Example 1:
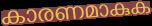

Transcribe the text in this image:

കാരണമാകുക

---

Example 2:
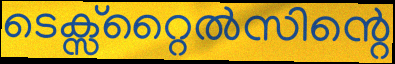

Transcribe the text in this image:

ടെക്സ്റ്റൈൽസിന്റെ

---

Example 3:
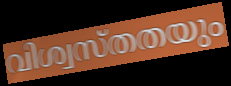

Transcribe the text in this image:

വിശ്വസ്തതയും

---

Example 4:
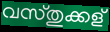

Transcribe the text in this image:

വസ്തുക്കള്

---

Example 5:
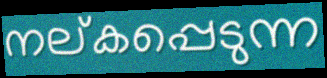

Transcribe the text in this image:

നല്കപ്പെടുന്ന